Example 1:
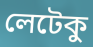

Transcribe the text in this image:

লেটেকু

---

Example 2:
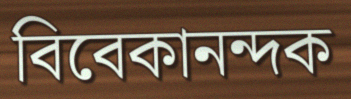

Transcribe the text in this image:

বিবেকানন্দক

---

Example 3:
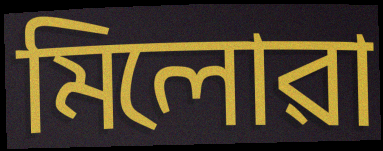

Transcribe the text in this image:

মিলোৱা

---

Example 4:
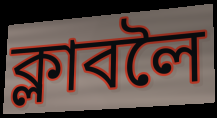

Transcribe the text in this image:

ক্লাবলৈ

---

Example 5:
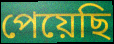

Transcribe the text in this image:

পেয়েছি